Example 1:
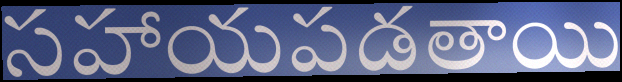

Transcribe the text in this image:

సహాయపడతాయి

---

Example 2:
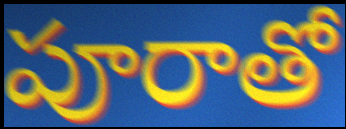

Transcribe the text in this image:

పూరాతో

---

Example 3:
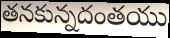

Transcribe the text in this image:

తనకున్నదంతయు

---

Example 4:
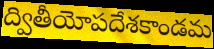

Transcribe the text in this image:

ద్వితీయోపదేశకాండమ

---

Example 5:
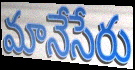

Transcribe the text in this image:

మానేసేరు